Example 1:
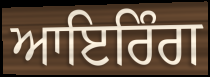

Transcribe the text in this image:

ਆਇਰਿੰਗ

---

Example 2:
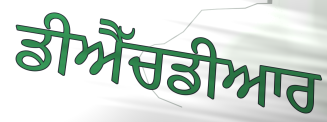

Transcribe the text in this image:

ਡੀਐੱਚਡੀਆਰ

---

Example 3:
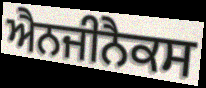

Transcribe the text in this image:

ਐਨਜੀਨੈਕਸ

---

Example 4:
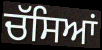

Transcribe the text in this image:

ਚੱਸਿਆਂ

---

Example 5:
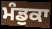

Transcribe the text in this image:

ਮੰਡੁਕਾ